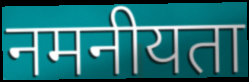
नमनीयता